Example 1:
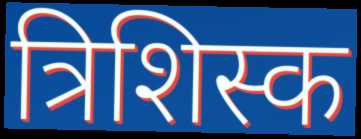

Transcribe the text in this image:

त्रिशिस्क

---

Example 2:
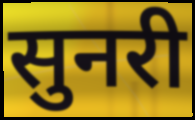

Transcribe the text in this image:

सुनरी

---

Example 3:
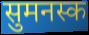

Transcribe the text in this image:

सुमनस्क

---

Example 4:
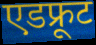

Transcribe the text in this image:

एडफ्रूट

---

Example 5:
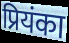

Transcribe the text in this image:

प्रियंका